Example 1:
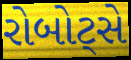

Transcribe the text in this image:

રોબોટ્સે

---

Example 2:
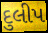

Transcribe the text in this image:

દુલીપ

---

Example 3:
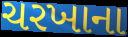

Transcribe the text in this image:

ચરખાના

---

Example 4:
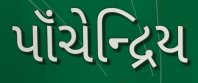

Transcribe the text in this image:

પૉંચેન્દ્રિય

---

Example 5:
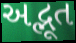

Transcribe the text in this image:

અદ્ભૂત